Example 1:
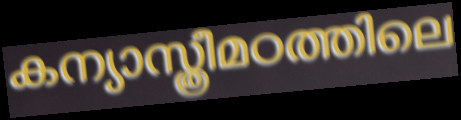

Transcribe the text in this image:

കന്യാസ്ത്രീമഠത്തിലെ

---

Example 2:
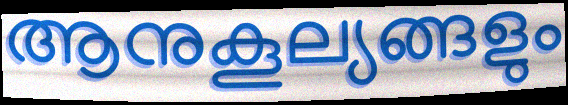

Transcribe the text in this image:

ആനുകൂല്യങ്ങളും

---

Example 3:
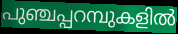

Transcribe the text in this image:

പുഞ്ചപ്പറമ്പുകളിൽ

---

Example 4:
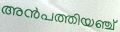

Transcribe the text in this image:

അൻപത്തിയഞ്ച്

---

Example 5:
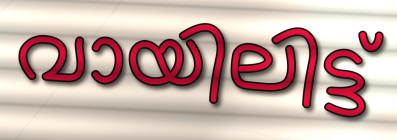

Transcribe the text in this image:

വായിലിട്ട്